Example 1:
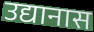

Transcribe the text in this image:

उद्यानास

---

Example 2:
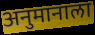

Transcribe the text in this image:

अनुमानाला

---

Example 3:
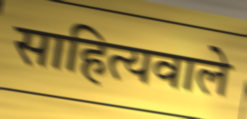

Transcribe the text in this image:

साहित्यवाले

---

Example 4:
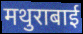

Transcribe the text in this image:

मथुराबाई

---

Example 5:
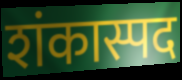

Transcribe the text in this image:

शंकास्पद